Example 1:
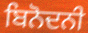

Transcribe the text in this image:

ਬਿਨੋਦਨੀ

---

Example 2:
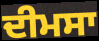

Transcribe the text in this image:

ਦੀਮਸਾ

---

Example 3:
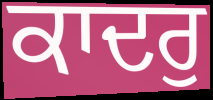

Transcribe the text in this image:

ਕਾਦਰੁ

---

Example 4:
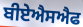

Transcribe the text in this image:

ਬੀਏਐਸਐਫ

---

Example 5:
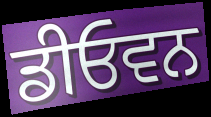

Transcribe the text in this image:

ਡੀਓਵਨ